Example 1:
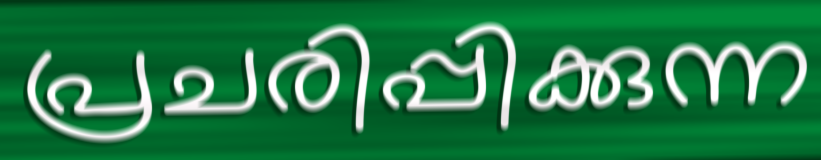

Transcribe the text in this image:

പ്രചരിപ്പിക്കുന്ന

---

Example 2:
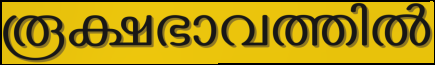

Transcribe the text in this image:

രൂക്ഷഭാവത്തിൽ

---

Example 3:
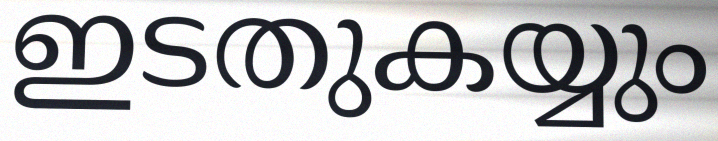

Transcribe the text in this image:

ഇടതുകയ്യും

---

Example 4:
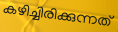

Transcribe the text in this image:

കഴിച്ചിരിക്കുന്നത്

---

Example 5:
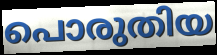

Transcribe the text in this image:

പൊരുതിയ